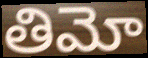
తిమో